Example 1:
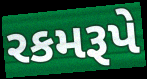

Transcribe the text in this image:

રકમરૂપે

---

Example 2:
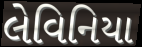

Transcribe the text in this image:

લેવિનિયા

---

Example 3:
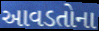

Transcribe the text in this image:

આવડતોના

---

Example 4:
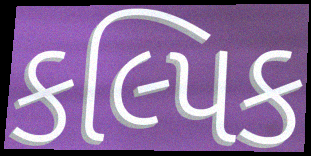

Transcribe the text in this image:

કલ્પિક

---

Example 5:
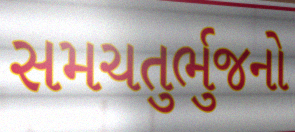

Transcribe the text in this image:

સમચતુર્ભુજનો